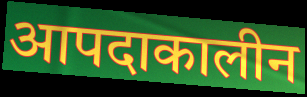
आपदाकालीन